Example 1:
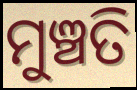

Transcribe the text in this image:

ମୁଞ୍ଚତି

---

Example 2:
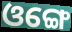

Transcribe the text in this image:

ଓଙ୍ଗେ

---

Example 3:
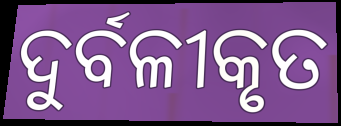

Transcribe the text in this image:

ଦୁର୍ବଳୀକୃତ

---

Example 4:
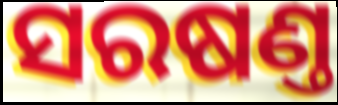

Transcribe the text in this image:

ସରଷଣ୍ତ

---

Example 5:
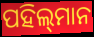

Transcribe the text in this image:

ପହିଲ୍‌ମାନ